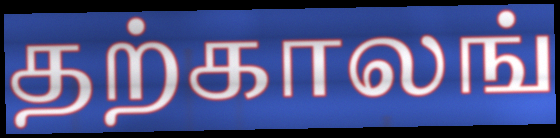
தற்காலங்